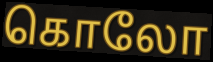
கொலோ